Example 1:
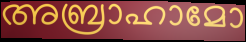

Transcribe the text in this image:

അബ്രാഹാമോ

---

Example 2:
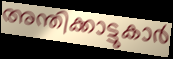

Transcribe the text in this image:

അന്തിക്കാട്ടുകാർ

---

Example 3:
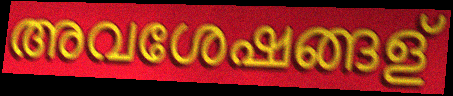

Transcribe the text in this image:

അവശേഷങ്ങള്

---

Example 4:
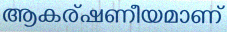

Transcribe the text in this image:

ആകര്ഷണീയമാണ്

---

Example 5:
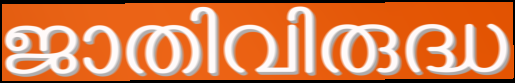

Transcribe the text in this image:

ജാതിവിരുദ്ധ